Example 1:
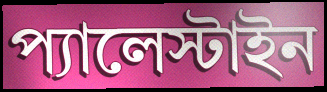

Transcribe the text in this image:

প্যালেস্টাইন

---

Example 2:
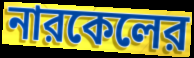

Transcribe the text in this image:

নারকেলের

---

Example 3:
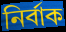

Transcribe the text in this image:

নির্বাক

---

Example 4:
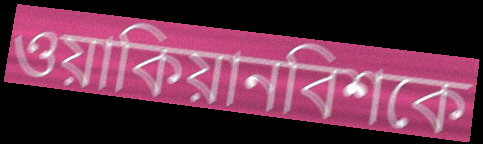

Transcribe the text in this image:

ওয়াকিয়ানবিশকে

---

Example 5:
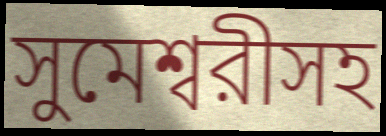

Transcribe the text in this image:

সুমেশ্বরীসহ